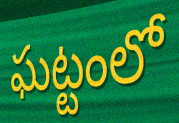
ఘట్టంలో